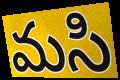
మసి